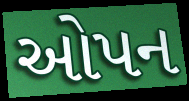
ઓપન